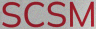
SCSM